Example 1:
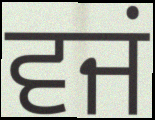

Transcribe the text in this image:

ਵਜਂ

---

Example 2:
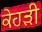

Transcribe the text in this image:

ਕੇਹੜੀ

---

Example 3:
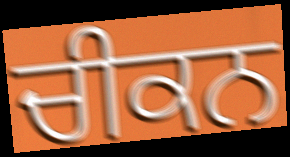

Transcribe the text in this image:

ਚੀਕਨ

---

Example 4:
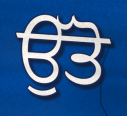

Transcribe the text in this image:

ਉੱਤੋ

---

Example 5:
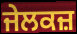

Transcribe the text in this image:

ਜੇਲਕਜ਼